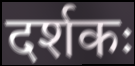
दर्शकः